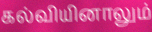
கல்வியினாலும்